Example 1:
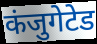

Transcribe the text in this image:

कंजुगेटेड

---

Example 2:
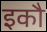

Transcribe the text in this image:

इकौ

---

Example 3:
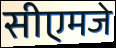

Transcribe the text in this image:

सीएमजे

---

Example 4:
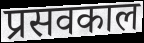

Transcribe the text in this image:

प्रसवकाल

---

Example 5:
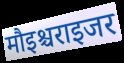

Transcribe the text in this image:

मौइश्चराइजर